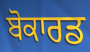
ਬੋਕਾਰਡ